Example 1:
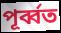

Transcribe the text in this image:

পূৰ্ব্বত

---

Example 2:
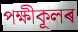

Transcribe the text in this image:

পক্ষীকূলৰ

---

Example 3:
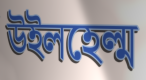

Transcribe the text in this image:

উইলহেল্ম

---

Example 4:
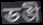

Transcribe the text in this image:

ভঙী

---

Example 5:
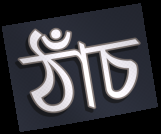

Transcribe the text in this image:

ঠাঁচ